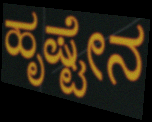
ಹೃಷ್ಟೇನ